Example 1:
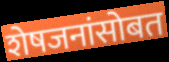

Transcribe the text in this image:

शेषजनांसोबत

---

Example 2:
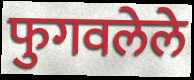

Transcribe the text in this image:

फुगवलेले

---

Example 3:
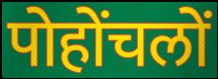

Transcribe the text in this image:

पोहोंचलों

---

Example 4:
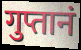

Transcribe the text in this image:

गुप्तानं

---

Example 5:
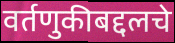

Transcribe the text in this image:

वर्तणुकीबद्दलचे